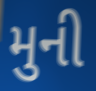
મુની